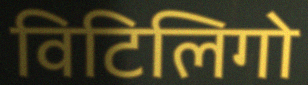
विटिलिगो